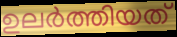
ഉലർത്തിയത്